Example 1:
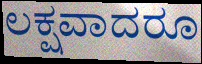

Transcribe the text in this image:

ಲಕ್ಷವಾದರೂ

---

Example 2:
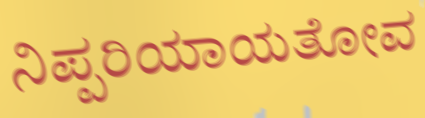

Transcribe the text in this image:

ನಿಪ್ಪರಿಯಾಯತೋವ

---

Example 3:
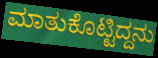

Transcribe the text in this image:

ಮಾತುಕೊಟ್ಟಿದ್ದನು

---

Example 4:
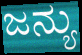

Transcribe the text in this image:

ಜನ್ಯು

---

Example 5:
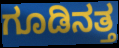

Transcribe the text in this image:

ಗೂಡಿನತ್ತ